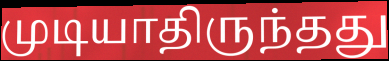
முடியாதிருந்தது